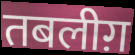
तबलीग़